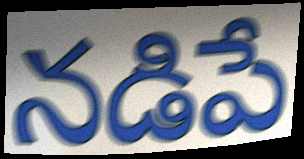
నడిపే